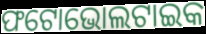
ଫଟୋଭୋଲଟାଇକ